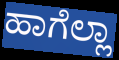
ಹಾಗೆಲ್ಲಾ